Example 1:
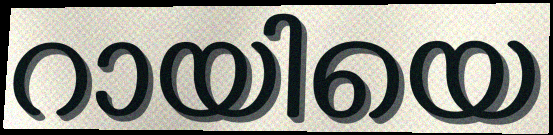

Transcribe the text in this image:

റായിയെ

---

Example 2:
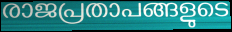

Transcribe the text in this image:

രാജപ്രതാപങ്ങളുടെ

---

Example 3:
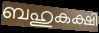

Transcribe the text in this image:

ബഹുകക്ഷി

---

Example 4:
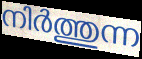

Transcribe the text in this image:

നിർത്തുന്ന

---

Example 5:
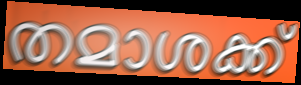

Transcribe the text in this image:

തമാശക്ക്